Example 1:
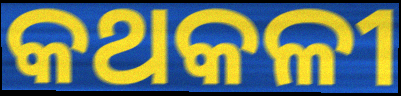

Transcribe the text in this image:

କଥକଳୀ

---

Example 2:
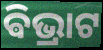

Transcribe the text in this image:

ଵିଭ୍ରାଟ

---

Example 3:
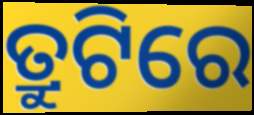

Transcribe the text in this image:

ତ୍ରୁଟିରେ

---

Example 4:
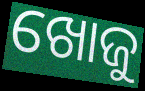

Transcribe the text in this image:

ଖୋଜୁ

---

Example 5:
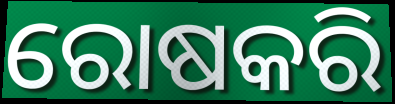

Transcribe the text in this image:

ରୋଷକରି